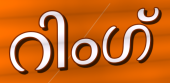
റിംഗ്